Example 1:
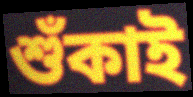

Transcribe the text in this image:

শুঁকাই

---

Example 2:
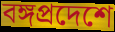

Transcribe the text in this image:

বঙ্গপ্রদেশে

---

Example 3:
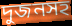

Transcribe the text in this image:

দুজনসহ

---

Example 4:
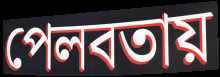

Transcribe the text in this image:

পেলবতায়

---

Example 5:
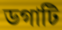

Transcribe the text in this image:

ডগাটি